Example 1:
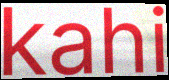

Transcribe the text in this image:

kahi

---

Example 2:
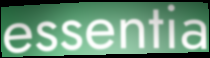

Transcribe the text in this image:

essentia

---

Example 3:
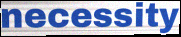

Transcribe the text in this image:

necessity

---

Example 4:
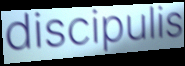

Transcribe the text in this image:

discipulis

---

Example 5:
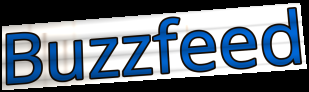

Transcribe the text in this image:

Buzzfeed